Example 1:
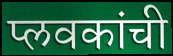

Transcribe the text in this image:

प्लवकांची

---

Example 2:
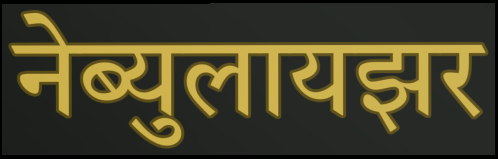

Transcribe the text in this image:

नेब्युलायझर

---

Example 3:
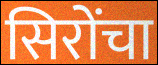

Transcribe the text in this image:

सिरोंचा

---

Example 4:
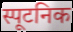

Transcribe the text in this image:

स्पूटनिक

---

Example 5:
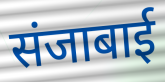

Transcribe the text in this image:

संजाबाई